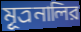
মূত্রনালির